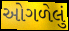
ઓગળેલું